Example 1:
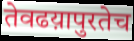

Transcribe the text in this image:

तेवढय़ापुरतेच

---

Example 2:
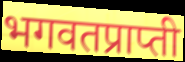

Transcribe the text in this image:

भगवतप्राप्ती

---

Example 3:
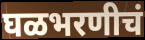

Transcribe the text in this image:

घळभरणीचं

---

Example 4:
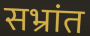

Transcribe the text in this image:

सभ्रांत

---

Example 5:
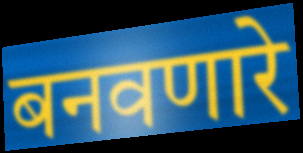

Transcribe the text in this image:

बनवणारे